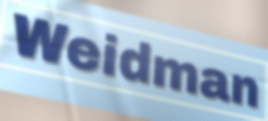
Weidman